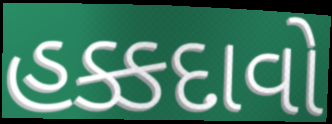
હક્કદાવો